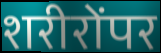
शरीरोंपर